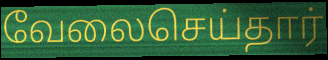
வேலைசெய்தார்